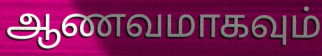
ஆணவமாகவும்